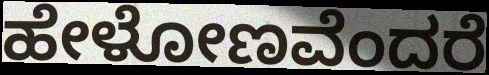
ಹೇಳೋಣವೆಂದರೆ